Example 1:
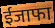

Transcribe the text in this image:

ईजाफा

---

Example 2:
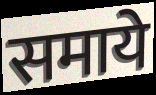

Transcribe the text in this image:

समाये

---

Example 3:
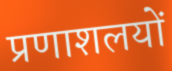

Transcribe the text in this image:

प्रणाशलयों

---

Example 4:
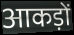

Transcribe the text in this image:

आकड़ों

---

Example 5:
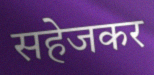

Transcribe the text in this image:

सहेजकर